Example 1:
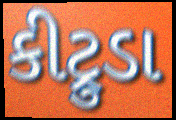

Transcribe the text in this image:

કીટ્રુડા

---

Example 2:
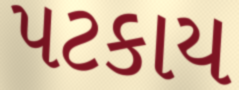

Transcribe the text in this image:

પટકાય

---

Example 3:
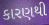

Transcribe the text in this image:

કારણથી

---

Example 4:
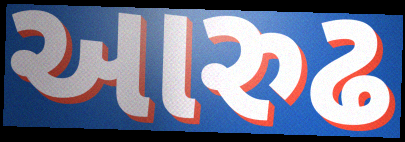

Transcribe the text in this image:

આરુઢ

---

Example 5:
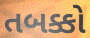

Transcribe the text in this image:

તબક્કો